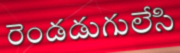
రెండడుగులేసి